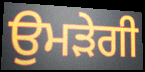
ਉਮੜੇਗੀ